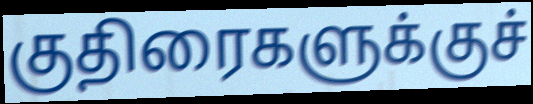
குதிரைகளுக்குச்